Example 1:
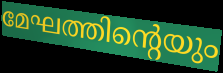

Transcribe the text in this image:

മേഘത്തിന്റെയും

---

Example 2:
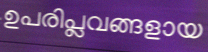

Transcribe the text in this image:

ഉപരിപ്ലവങ്ങളായ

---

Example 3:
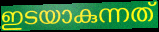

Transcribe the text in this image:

ഇടയാകുന്നത്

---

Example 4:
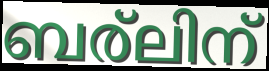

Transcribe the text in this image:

ബര്ലിന്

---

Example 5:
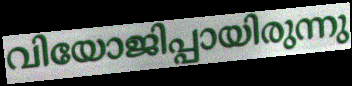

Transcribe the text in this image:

വിയോജിപ്പായിരുന്നു